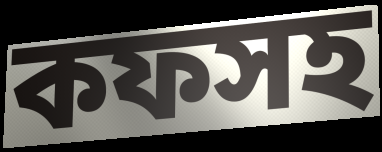
কফসহ